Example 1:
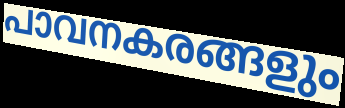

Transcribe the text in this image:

പാവനകരങ്ങളും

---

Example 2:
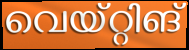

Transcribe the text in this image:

വെയ്റ്റിങ്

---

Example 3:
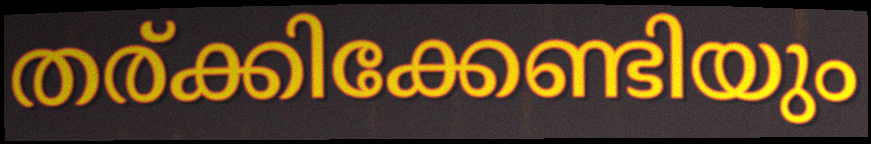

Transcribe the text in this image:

തര്ക്കിക്കേണ്ടിയും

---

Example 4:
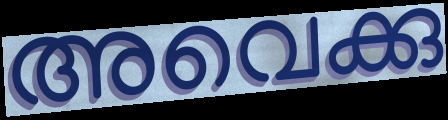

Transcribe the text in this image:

അവെക്കു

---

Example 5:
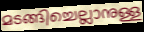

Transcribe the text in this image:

മടങ്ങിച്ചെല്ലാനുള്ള